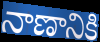
నాణానికి